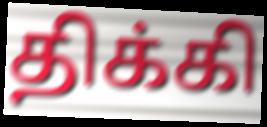
திக்கி